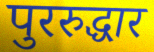
पुररुद्धार